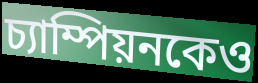
চ্যাম্পিয়নকেও